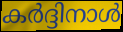
കർദ്ദിനാൾ